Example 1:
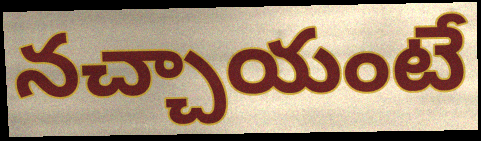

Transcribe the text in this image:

నచ్చాయంటే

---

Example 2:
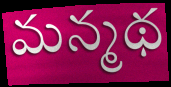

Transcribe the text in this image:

మన్మథ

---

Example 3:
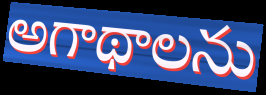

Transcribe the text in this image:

అగాథాలను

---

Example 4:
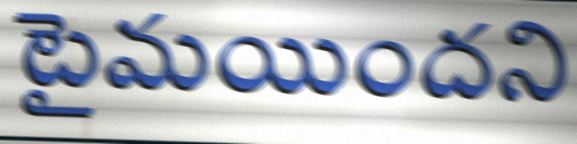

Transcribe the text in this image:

టైమయిందని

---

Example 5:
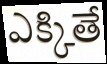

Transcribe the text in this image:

ఎక్కితే